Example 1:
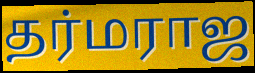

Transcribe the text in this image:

தர்மராஜ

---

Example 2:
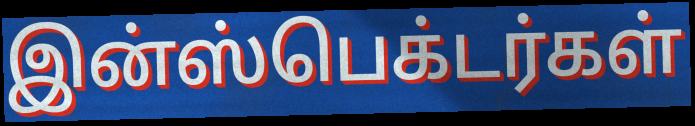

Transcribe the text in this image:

இன்ஸ்பெக்டர்கள்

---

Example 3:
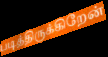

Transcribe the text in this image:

படித்திருக்கிறேன்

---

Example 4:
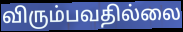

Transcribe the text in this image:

விரும்பவதில்லை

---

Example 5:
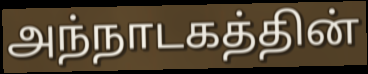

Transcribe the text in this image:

அந்நாடகத்தின்